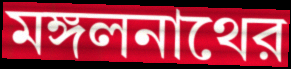
মঙ্গলনাথের